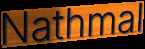
Nathmal